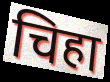
चिहा